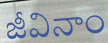
జీవినాం